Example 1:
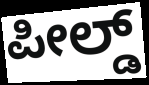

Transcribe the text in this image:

ಪೀಲ್ಡ್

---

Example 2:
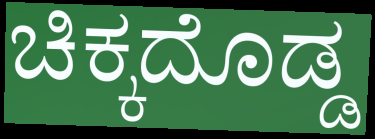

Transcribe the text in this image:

ಚಿಕ್ಕದೊಡ್ಡ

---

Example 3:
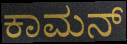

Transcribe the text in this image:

ಕಾಮನ್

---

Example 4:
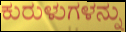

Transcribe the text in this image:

ಕುರುಳುಗಳನ್ನು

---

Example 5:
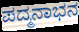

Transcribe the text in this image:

ಪದ್ಮನಾಭನ